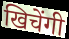
खिचेंगी